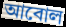
আবোল